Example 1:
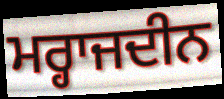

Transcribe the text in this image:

ਮਰ੍ਹਾਜਦੀਨ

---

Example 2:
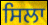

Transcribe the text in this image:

ਸਿਲਾ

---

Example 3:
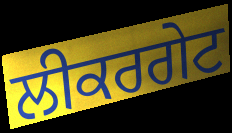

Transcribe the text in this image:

ਲੀਕਰਗੇਟ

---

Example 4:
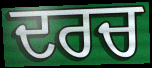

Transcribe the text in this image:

ਦਰਚ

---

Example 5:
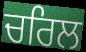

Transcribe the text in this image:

ਚਰਿਲ